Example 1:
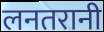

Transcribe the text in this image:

लनतरानी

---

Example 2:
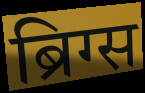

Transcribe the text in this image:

ब्रिग्स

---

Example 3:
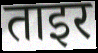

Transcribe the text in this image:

ताइर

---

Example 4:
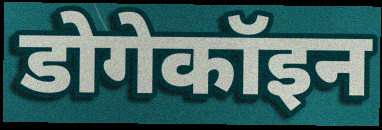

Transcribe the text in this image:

डोगेकॉइन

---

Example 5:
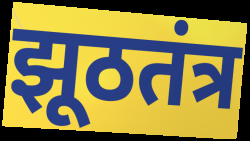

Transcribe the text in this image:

झूठतंत्र